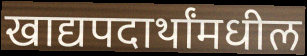
खाद्यपदार्थांमधील